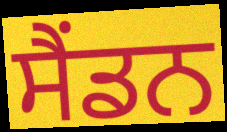
ਸੈਂਡਨ